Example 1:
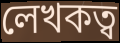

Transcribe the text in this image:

লেখকত্ব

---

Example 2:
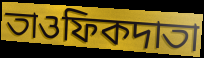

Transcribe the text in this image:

তাওফিকদাতা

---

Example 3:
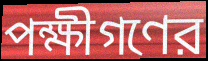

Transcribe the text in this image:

পক্ষীগণের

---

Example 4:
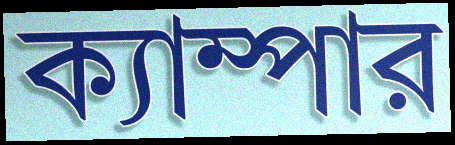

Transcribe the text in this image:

ক্যাম্পার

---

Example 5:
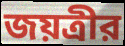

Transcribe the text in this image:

জয়ত্রীর